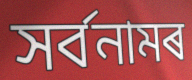
সৰ্বনামৰ